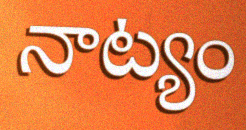
నాట్యం